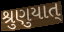
શ્રુણુયાત્